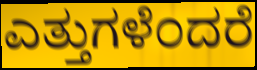
ಎತ್ತುಗಳೆಂದರೆ